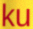
ku